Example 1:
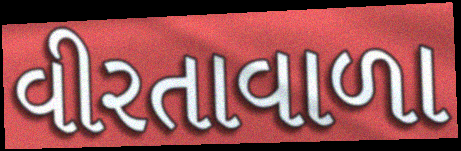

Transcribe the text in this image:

વીરતાવાળા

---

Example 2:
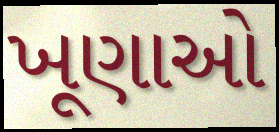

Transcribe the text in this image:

ખૂણાઓ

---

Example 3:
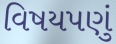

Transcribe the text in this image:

વિષયપણું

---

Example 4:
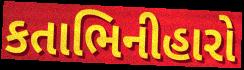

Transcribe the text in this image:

કતાભિનીહારો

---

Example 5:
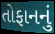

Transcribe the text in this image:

તોફાનનું